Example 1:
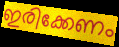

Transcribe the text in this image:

ഇരിക്കേണം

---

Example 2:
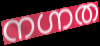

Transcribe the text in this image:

നഗ്നത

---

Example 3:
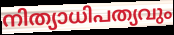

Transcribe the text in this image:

നിത്യാധിപത്യവും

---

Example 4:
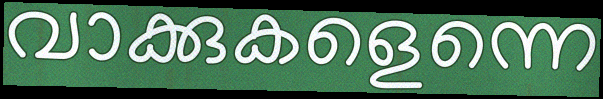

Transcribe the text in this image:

വാക്കുകളെന്നെ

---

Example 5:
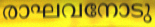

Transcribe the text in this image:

രാഘവനോടു